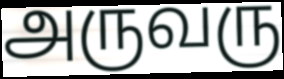
அருவரு